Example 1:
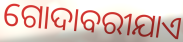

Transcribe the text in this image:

ଗୋଦାବରୀଯାଏ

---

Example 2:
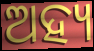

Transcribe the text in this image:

ଅହ୍ୟ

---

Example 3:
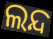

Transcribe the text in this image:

ଲନ୍ଦ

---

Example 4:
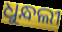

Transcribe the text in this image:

ଧୁନ୍ଧଲୀ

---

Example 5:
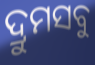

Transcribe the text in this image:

ଦ୍ରୁମସବୁ